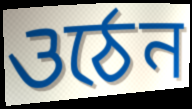
ওঠেন